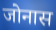
जोनास